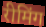
रीमिंग